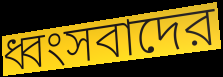
ধ্বংসবাদের